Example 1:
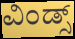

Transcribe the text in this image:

ವಿಂಡ್ಸ್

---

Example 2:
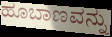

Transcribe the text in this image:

ಹೂಬಾಣವನ್ನು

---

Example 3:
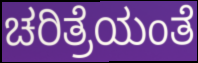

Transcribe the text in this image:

ಚರಿತ್ರೆಯಂತೆ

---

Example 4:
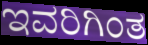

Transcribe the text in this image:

ಇವರಿಗಿಂತ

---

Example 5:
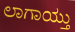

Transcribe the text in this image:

ಲಾಗಾಯ್ತು